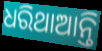
ଧରିଥାଆନ୍ତି